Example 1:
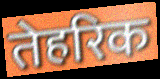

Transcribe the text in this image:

तेहरिक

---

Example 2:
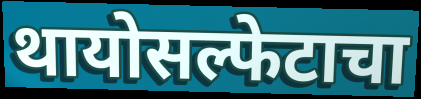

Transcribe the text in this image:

थायोसल्फेटाचा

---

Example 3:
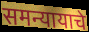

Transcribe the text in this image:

समन्यायाचे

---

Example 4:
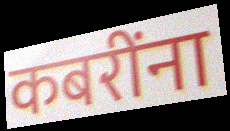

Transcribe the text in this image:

कबरींना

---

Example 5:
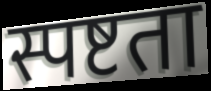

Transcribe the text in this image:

स्पष्टता